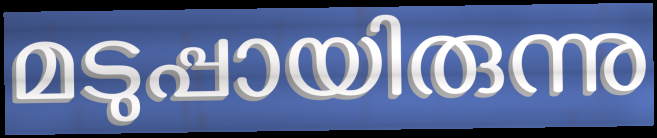
മടുപ്പായിരുന്നു